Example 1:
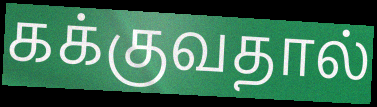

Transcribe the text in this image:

கக்குவதால்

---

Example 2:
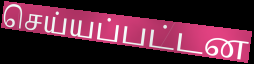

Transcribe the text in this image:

செய்யப்பட்டன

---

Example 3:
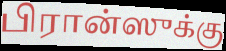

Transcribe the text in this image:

பிரான்ஸுக்கு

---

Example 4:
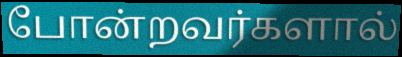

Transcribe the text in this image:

போன்றவர்களால்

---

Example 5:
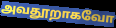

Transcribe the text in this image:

அவதூறாகவோ